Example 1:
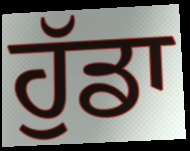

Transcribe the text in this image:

ਹੁੱਡਾ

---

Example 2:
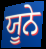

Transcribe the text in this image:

ਯੂਨੇ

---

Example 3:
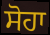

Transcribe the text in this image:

ਸੋਹਾ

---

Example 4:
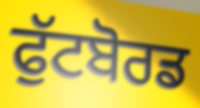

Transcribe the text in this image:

ਫੁੱਟਬੋਰਡ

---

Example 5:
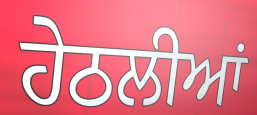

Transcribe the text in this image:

ਹੇਠਲੀਆਂ